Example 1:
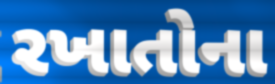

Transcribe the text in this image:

રખાતોના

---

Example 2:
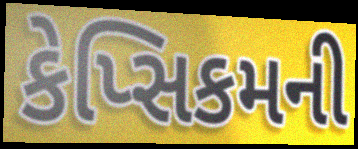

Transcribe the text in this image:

કેપ્સિકમની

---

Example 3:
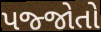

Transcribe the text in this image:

પજ્જોતો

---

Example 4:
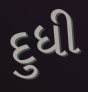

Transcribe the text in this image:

દુધી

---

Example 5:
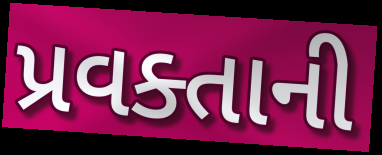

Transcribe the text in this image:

પ્રવક્તાની